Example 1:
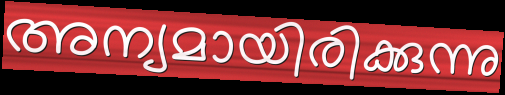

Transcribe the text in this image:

അന്യമായിരിക്കുന്നു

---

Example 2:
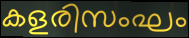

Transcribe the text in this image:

കളരിസംഘം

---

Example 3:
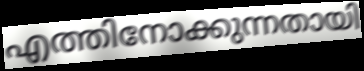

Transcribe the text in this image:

എത്തിനോക്കുന്നതായി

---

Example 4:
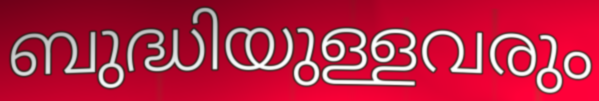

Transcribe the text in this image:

ബുദ്ധിയുള്ളവരും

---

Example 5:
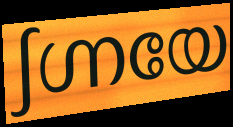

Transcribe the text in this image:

ഽഗ്നയേ